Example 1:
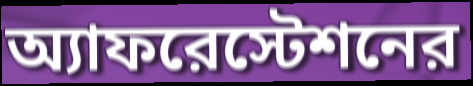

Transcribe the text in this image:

অ্যাফরেস্টেশনের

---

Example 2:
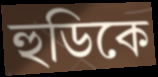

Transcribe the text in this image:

হুডিকে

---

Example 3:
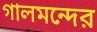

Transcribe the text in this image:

গালমন্দের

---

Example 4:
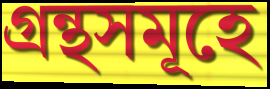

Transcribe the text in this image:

গ্রন্থসমূহে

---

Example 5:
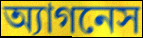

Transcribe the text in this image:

অ্যাগনেস